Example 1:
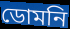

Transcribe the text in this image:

ডোমনি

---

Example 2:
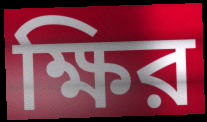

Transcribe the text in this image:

ক্ষির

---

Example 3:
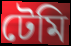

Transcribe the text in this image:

টেমি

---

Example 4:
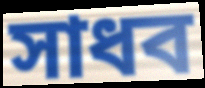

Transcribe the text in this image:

সাধব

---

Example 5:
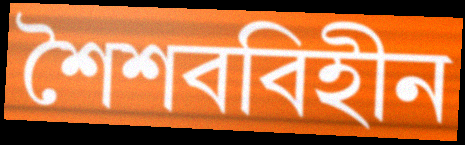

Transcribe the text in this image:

শৈশববিহীন